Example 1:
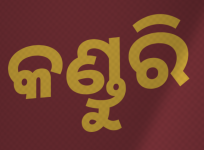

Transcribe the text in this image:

କଣ୍ଡୁରି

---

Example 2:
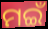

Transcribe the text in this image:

ମଇଁ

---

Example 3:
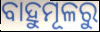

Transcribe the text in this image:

ବାହୁମୂଳରୁ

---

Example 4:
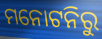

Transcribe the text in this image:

ମନୋଟନିରୁ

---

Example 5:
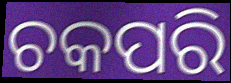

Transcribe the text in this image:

ଚକପରି